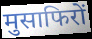
मुसाफिरों